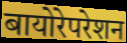
बायोरेपरेशन